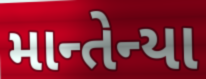
માન્તેન્યા